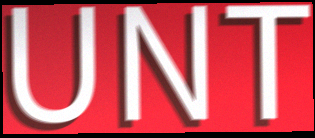
UNT